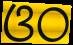
ଓଠ